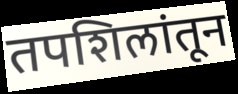
तपशिलांतून